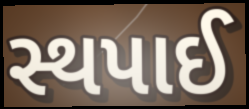
સ્થપાઈ